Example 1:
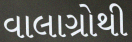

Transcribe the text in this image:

વાલાગ્રોથી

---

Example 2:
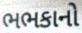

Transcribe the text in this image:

ભભકાનો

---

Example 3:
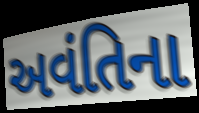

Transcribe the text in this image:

અવંતિના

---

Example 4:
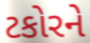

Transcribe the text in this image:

ટકોરને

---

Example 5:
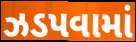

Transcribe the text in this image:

ઝડપવામાં